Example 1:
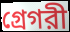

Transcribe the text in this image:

গ্রেগরী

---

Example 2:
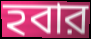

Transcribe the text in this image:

হবার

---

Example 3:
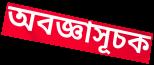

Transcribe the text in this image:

অবজ্ঞাসূচক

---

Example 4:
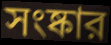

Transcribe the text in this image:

সংষ্কার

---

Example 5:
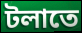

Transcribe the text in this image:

টলাতে